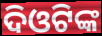
ଦିଓଟିଙ୍କ